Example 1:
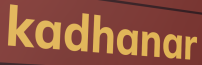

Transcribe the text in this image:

kadhanar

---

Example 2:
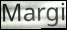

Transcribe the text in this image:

Margi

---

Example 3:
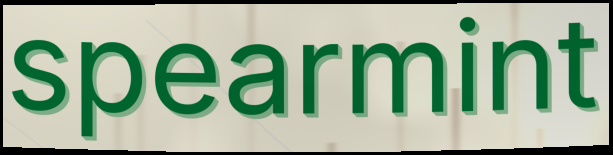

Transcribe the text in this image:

spearmint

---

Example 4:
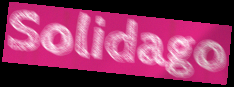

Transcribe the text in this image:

Solidago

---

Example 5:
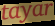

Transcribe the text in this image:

tayar